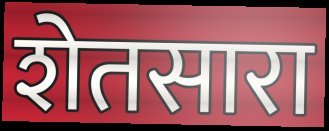
शेतसारा